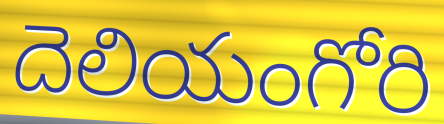
దెలియంగోరి